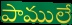
పాములే